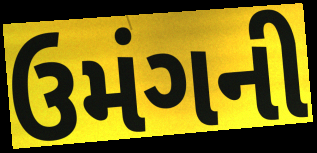
ઉમંગની